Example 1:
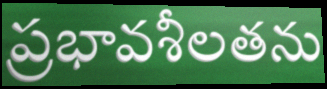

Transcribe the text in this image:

ప్రభావశీలతను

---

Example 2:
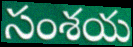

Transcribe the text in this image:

సంశయ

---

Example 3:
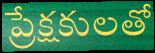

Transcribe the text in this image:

ప్రేక్షకులతో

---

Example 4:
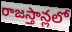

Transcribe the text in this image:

రాజస్తాన్లలో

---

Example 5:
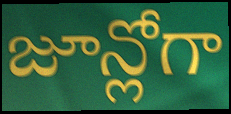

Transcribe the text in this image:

జూన్లోగా